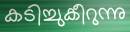
കടിച്ചുകീറുന്നു